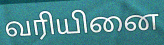
வரியினை